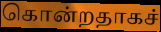
கொன்றதாகச்